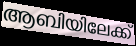
ആബിയിലേക്ക്